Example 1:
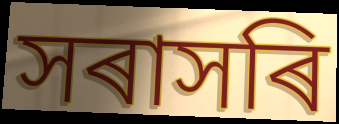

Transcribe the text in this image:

সৰাসৰি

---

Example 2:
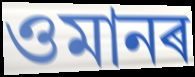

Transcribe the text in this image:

ওমানৰ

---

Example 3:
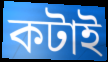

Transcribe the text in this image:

কটাই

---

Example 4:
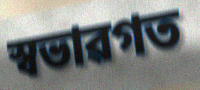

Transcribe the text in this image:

স্বভাৱগত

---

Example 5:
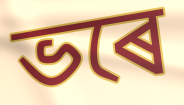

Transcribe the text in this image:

ভৰে